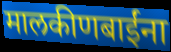
मालकीणबाईंना